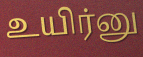
உயிர்னு